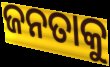
ଜନତାକୁ